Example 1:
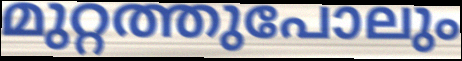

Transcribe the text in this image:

മുറ്റത്തുപോലും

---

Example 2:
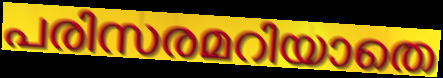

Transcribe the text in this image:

പരിസരമറിയാതെ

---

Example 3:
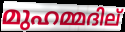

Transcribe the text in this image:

മുഹമ്മദില്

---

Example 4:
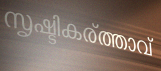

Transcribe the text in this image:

സൃഷ്ടികര്ത്താവ്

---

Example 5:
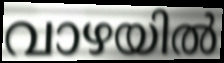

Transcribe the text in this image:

വാഴയിൽ